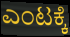
ಎಂಟಕ್ಕೆ